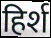
हिर्श